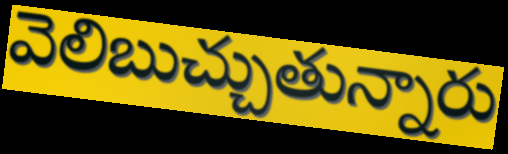
వెలిబుచ్చుతున్నారు